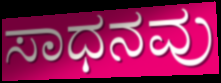
ಸಾಧನವು